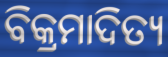
ବିକ୍ରମାଦିତ୍ୟ